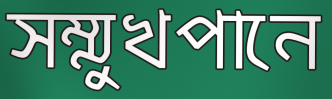
সম্মুখপানে